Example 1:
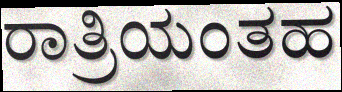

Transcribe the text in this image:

ರಾತ್ರಿಯಂತಹ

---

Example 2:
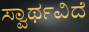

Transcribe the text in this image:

ಸ್ವಾರ್ಥವಿದೆ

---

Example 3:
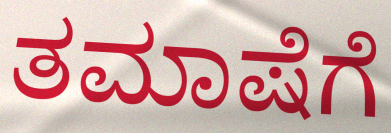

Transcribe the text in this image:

ತಮಾಷೆಗೆ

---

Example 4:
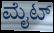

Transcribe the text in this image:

ಮೈಟ್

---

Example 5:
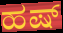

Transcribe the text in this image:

ಹಷ್